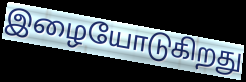
இழையோடுகிறது